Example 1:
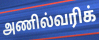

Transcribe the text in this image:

அணில்வரிக்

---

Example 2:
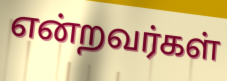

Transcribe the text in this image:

என்றவர்கள்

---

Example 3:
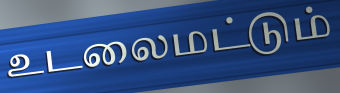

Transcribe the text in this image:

உடலைமட்டும்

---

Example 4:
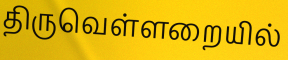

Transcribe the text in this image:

திருவெள்ளறையில்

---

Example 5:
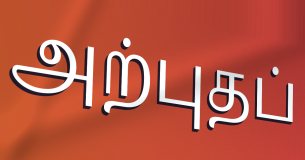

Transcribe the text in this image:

அற்புதப்